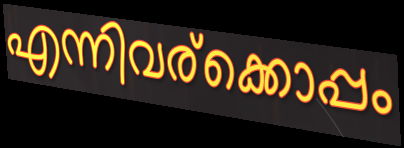
എന്നിവര്ക്കൊപ്പം